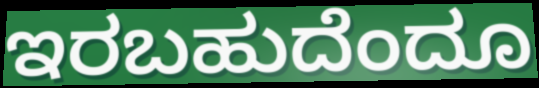
ಇರಬಹುದೆಂದೂ